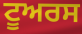
ਟੂਅਰਸ